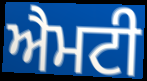
ਐਮਟੀ